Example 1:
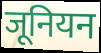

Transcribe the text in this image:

जूनियन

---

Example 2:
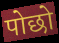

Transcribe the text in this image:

पोछो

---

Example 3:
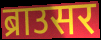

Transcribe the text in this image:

ब्राउसर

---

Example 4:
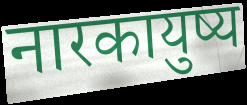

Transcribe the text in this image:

नारकायुष्य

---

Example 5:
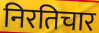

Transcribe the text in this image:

निरतिचार